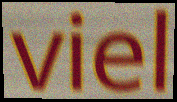
viel